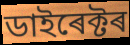
ডাইৰেক্টৰ